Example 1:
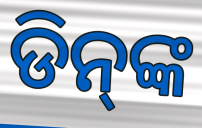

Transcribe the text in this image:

ଡିନ୍‍ଙ୍କ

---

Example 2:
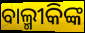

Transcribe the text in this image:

ବାଲ୍ମୀକିଙ୍କ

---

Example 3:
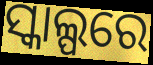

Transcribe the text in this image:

ସ୍କାଲ୍ପରେ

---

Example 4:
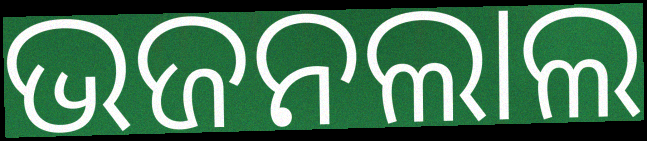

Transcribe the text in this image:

ଭଜନଲାଲ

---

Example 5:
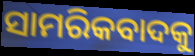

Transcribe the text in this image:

ସାମରିକବାଦକୁ